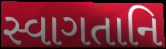
સ્વાગતાનિ